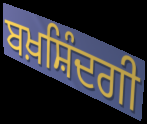
ਬਖ਼ਸ਼ਿੰਦਗੀ